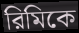
রিমিকে